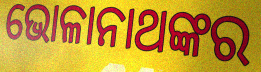
ଭୋଳାନାଥଙ୍କର